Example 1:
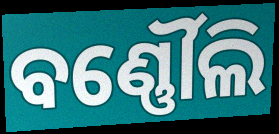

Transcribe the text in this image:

ବର୍ଣ୍ଣୌଲି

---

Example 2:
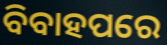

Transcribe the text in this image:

ବିବାହପରେ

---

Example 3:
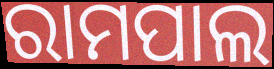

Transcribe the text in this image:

ରାମପାଲ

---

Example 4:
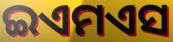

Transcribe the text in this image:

ଇଏମଏସ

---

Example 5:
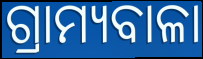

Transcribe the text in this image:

ଗ୍ରାମ୍ୟବାଳା